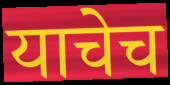
याचेच